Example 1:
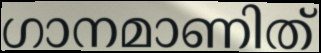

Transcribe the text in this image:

ഗാനമാണിത്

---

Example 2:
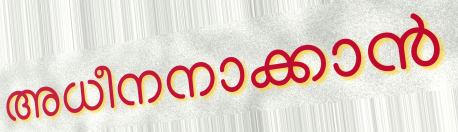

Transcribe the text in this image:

അധീനനാക്കാൻ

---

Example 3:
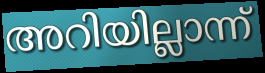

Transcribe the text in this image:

അറിയില്ലാന്ന്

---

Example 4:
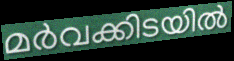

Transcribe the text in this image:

മർവക്കിടയിൽ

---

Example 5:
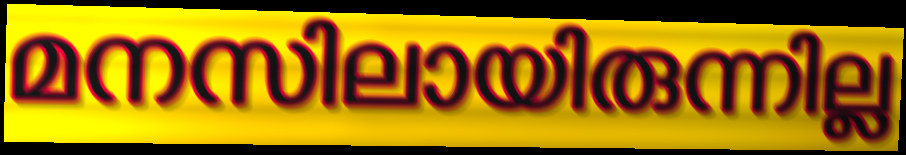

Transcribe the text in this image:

മനസിലായിരുന്നില്ല